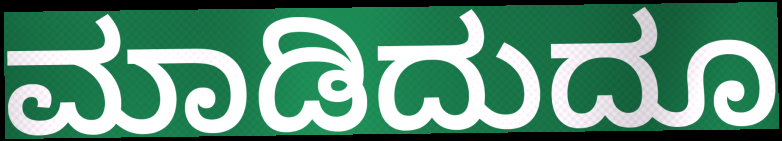
ಮಾಡಿದುದೂ